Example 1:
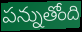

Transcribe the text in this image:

పన్నుతోంది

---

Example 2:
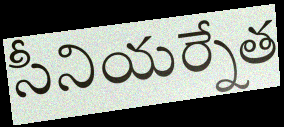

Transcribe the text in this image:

సీనియర్నేత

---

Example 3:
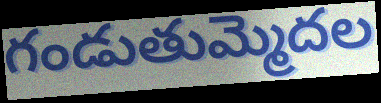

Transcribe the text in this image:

గండుతుమ్మెదల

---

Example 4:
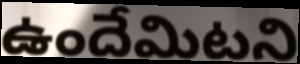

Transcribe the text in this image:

ఉందేమిటని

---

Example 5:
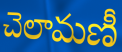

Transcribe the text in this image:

చెలామణీ